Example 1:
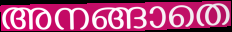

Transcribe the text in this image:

അനങ്ങാതെ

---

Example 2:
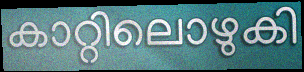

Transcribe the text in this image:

കാറ്റിലൊഴുകി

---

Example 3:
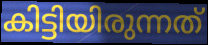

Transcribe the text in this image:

കിട്ടിയിരുന്നത്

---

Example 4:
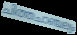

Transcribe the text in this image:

ചിത്തചാഞ്ചല്യം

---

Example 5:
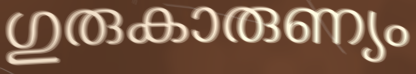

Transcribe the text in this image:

ഗുരുകാരുണ്യം